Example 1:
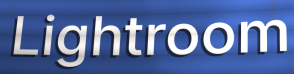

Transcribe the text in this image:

Lightroom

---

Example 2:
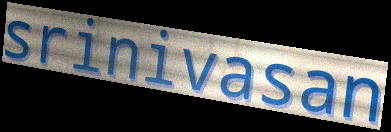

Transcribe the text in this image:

srinivasan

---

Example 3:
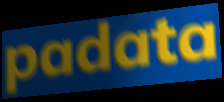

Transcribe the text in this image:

padata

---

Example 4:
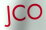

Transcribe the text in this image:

JCO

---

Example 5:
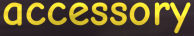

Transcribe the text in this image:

accessory